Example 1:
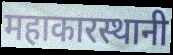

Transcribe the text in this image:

महाकारस्थानी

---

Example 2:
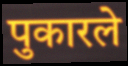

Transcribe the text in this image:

पुकारले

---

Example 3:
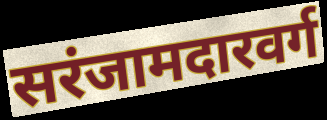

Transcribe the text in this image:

सरंजामदारवर्ग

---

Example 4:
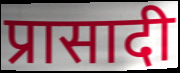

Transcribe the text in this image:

प्रासादी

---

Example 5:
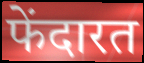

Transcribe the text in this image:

फेंदारत